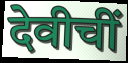
देवीचीं